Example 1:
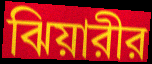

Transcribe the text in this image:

ঝিয়ারীর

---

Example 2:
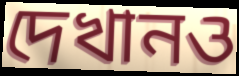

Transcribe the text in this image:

দেখানও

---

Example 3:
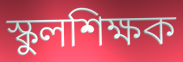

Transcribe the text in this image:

স্কুলশিক্ষক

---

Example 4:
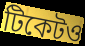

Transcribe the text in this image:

টিকেটও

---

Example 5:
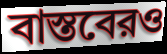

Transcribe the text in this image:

বাস্তবেরও